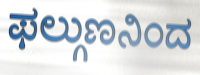
ಫಲ್ಗುಣನಿಂದ